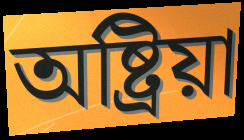
অষ্ট্রিয়া